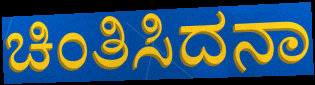
ಚಿಂತಿಸಿದನಾ